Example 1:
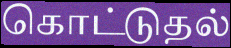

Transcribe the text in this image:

கொட்டுதல்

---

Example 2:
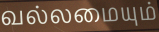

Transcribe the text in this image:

வல்லமையும்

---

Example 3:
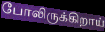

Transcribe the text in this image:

போலிருக்கிறாய்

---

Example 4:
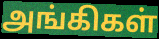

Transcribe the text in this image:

அங்கிகள்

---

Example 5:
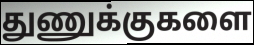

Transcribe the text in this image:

துணுக்குகளை